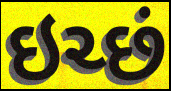
ઇચ્છં